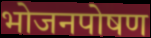
भोजनपोषण